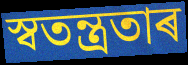
স্বতন্ত্ৰতাৰ